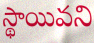
స్థాయివని